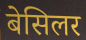
बेसिलर